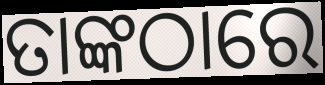
ତାଙ୍କଠାରେ